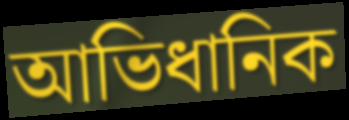
আভিধানিক